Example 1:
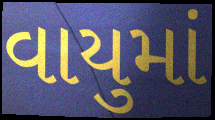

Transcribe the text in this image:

વાયુમાં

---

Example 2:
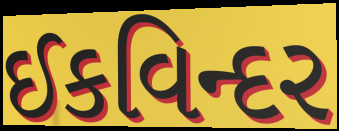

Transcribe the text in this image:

ઈકવિન્દર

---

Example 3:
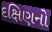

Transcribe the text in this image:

દક્ષિણનો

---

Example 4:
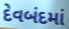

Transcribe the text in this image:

દેવબંદમાં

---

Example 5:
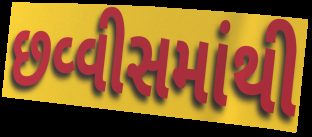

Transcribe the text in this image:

છવ્વીસમાંથી